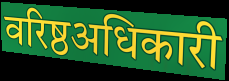
वरिष्ठअधिकारी